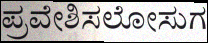
ಪ್ರವೇಶಿಸಲೋಸುಗ